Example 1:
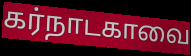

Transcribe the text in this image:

கர்நாடகாவை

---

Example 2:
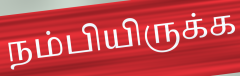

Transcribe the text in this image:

நம்பியிருக்க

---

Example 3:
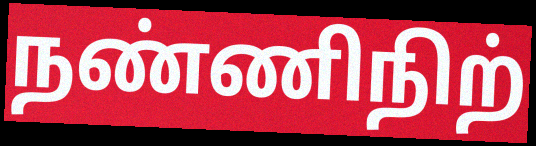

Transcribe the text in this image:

நண்ணிநிற்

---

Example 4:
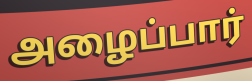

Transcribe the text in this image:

அழைப்பார்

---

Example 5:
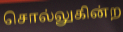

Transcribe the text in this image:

சொல்லுகின்ற